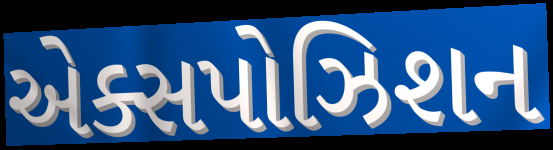
એક્સપોઝિશન